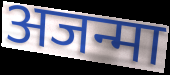
अजन्‍मा